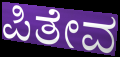
ಪಿತೇವ